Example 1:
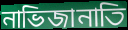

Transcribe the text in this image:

নাভিজানাতি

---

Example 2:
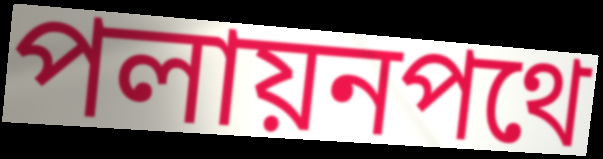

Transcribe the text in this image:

পলায়নপথে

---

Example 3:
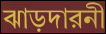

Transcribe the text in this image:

ঝাড়দারনী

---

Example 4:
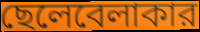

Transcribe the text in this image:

ছেলেবেলাকার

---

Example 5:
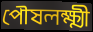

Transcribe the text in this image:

পৌষলক্ষ্মী